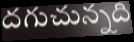
దగుచున్నది